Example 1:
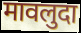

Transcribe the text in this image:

मावलुदा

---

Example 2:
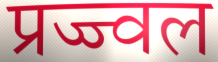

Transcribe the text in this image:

प्रज्ज्वल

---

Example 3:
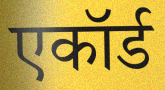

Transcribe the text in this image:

एकॉर्ड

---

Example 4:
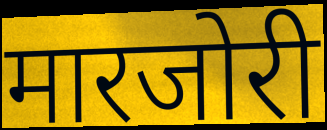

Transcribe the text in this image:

मारजोरी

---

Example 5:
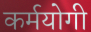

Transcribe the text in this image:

कर्मयोगी